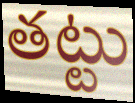
తట్టు